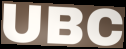
UBC